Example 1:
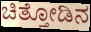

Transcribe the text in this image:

ಚಿತ್ತೋಡಿನ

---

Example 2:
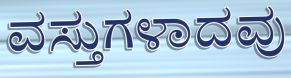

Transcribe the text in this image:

ವಸ್ತುಗಳಾದವು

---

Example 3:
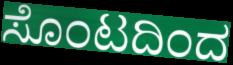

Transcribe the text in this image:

ಸೊಂಟದಿಂದ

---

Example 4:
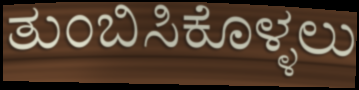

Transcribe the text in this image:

ತುಂಬಿಸಿಕೊಳ್ಳಲು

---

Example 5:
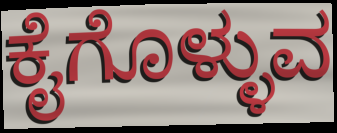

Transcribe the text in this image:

ಕೈಗೊಳ್ಳುವ